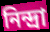
নিন্দ্ৰা